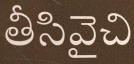
తీసివైచి